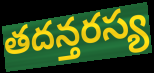
తదన్తరస్య